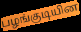
பழங்குடியின